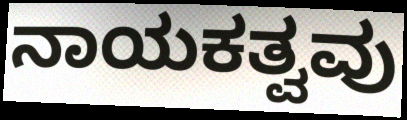
ನಾಯಕತ್ವವು